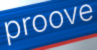
proove